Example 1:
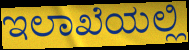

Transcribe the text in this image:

ಇಲಾಖೆಯಲ್ಲಿ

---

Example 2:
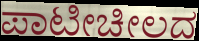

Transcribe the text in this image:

ಪಾಟೀಚೀಲದ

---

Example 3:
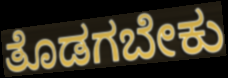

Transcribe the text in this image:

ತೊಡಗಬೇಕು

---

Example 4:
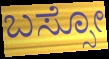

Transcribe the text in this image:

ಬಸ್ಸೋ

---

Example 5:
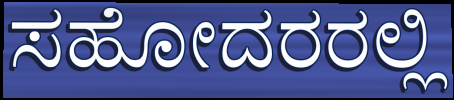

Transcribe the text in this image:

ಸಹೋದರರಲ್ಲಿ